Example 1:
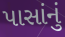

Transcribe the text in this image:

પાસાંનું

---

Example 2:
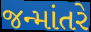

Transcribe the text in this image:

જન્માંતરે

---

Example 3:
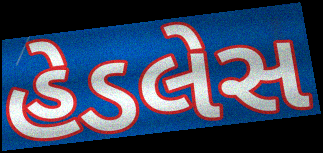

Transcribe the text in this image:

હેડલેસ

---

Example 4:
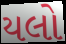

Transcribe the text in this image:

યલો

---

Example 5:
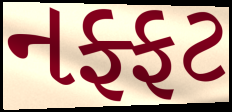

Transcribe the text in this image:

નફ્ફટ